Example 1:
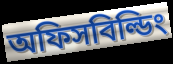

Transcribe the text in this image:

অফিসবিল্ডিং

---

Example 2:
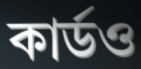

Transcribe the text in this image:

কার্ডও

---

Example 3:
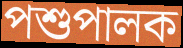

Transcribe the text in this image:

পশুপালক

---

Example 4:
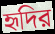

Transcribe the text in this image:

হৃদির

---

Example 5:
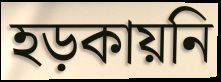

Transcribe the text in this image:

হড়কায়নি